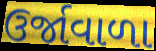
ઉર્જાવાળા